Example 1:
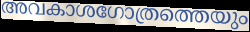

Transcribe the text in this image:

അവകാശഗോത്രത്തെയും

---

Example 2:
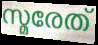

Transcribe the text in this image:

സ്മരേത്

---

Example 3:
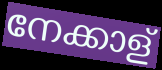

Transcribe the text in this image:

നേക്കാള്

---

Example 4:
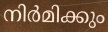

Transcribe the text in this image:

നിർമിക്കും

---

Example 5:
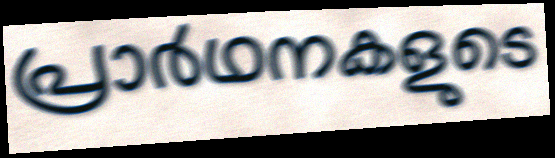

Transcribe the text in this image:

പ്രാർഥനകളുടെ